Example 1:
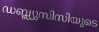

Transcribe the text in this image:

ഡബ്ല്യുസിസിയുടെ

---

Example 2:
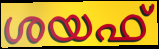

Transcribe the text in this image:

ശയഫ്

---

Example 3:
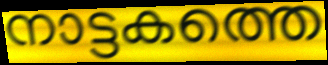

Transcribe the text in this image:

നാട്ടകത്തെ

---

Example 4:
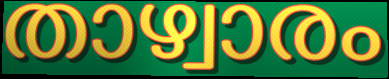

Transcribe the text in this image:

താഴ്വാരം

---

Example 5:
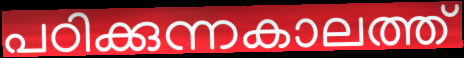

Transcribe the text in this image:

പഠിക്കുന്നകാലത്ത്